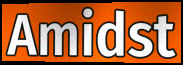
Amidst